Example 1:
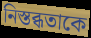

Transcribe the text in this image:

নিস্তব্ধতাকে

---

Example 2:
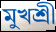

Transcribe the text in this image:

মুখশ্রী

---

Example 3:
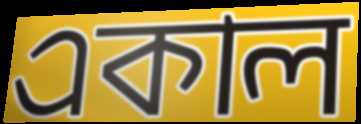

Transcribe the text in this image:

একাল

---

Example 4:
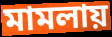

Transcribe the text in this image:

মামলায়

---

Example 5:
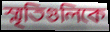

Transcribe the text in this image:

স্মৃতিগুলিকে